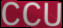
CCU